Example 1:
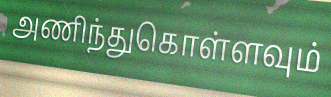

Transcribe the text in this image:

அணிந்துகொள்ளவும்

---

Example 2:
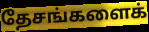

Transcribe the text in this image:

தேசங்களைக்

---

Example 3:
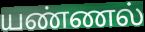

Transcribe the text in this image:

யண்ணல்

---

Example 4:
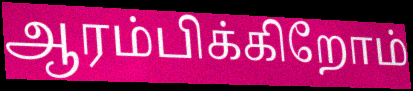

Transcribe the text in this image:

ஆரம்பிக்கிறோம்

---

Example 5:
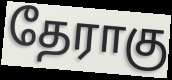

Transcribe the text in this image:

தேராகு